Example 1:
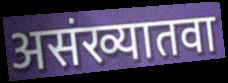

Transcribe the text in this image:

असंख्यातवा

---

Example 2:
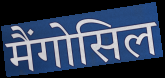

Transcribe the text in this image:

मैंगोसिल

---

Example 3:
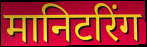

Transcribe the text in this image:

मानिटरिंग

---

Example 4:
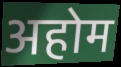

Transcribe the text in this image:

अहोम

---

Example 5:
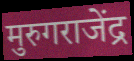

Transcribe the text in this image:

मुरुगराजेंद्र